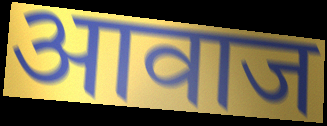
आवाज